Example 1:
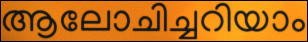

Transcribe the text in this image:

ആലോചിച്ചറിയാം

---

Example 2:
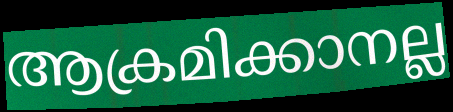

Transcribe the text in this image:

ആക്രമിക്കാനല്ല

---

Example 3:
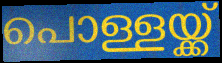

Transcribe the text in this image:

പൊള്ളയ്ക്ക്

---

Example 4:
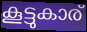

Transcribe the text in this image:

കൂട്ടുകാര്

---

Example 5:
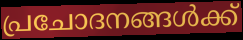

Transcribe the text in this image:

പ്രചോദനങ്ങൾക്ക്